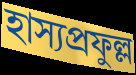
হাস্যপ্রফুল্ল